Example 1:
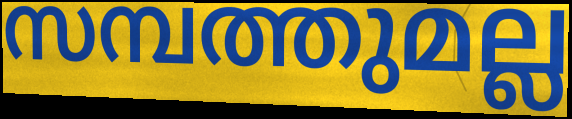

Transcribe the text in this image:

സമ്പത്തുമല്ല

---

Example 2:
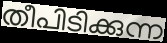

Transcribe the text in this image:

തീപിടിക്കുന്ന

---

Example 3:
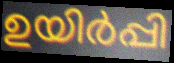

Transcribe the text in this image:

ഉയിർപ്പി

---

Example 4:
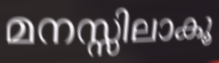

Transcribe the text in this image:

മനസ്സിലാകൂ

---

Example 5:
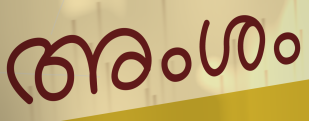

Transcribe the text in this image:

അംശം